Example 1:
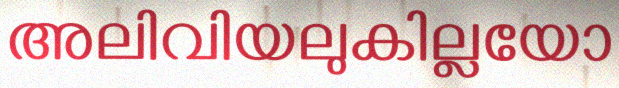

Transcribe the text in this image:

അലിവിയലുകില്ലയോ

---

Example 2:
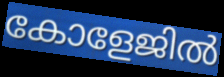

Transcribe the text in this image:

കോളേജിൽ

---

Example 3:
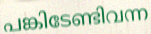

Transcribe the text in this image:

പങ്കിടേണ്ടിവന്ന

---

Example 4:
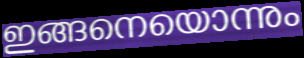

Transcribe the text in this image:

ഇങ്ങനെയൊന്നും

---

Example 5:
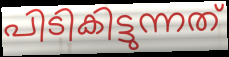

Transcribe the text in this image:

പിടികിട്ടുന്നത്